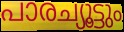
പാരച്യൂട്ടും